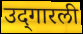
उद्‌गारली